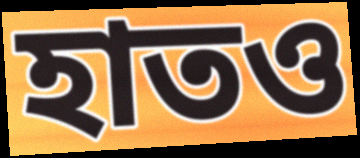
হাতও